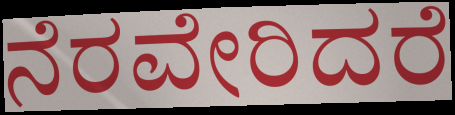
ನೆರವೇರಿದರೆ